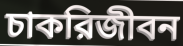
চাকরিজীবন